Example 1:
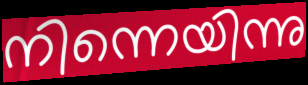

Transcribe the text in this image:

നിന്നെയിന്നു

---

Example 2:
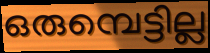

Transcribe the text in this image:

ഒരുമ്പെട്ടില്ല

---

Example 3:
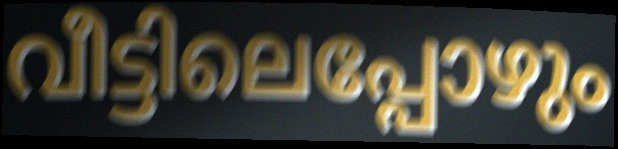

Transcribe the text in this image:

വീട്ടിലെപ്പോഴും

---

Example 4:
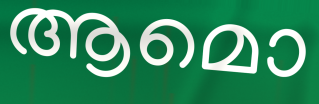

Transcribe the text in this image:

ആമൊ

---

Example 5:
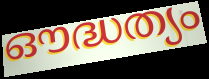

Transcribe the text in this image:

ഔദ്ധത്യം